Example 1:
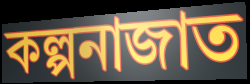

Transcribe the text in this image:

কল্পনাজাত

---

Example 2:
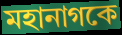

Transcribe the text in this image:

মহানাগকে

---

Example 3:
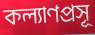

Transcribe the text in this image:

কল্যাণপ্রসূ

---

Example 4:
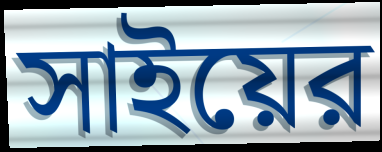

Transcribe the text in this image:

সাইয়ের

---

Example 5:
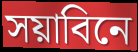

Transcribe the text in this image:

সয়াবিনে